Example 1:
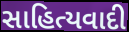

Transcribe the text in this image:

સાહિત્યવાદી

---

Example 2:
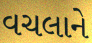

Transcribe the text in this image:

વચલાને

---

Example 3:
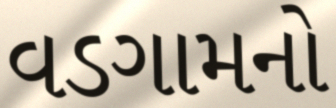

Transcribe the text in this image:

વડગામનો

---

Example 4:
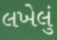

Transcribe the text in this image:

લખેલું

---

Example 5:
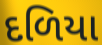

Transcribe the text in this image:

દળિયા